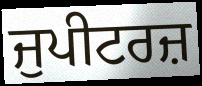
ਜੁਪੀਟਰਜ਼